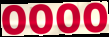
OOOO